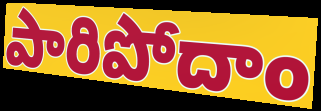
పారిపోదాం